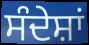
ਸੰਦੇਸ਼ਾਂ